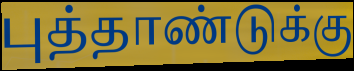
புத்தாண்டுக்கு